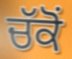
ਚੱਕੋਂ